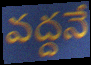
వద్దనే